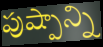
పుష్పాన్ని